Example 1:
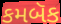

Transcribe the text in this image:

કમબૅક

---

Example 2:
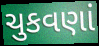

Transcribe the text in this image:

ચુકવણાં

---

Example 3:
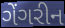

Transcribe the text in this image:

ગેંગરીન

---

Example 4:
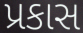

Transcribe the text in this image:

પ્રકાસ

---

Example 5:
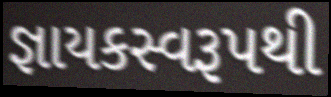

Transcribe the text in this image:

જ્ઞાયકસ્વરૂપથી